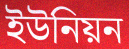
ইউনিয়ন